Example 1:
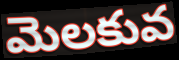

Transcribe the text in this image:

మెలకువ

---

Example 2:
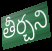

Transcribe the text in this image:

తీర్చని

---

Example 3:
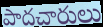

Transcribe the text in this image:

పాదచారులు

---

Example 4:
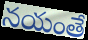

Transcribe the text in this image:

నయంతే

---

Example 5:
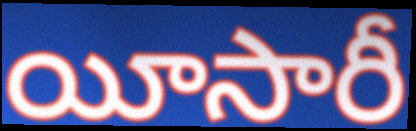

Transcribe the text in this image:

యీసారీ